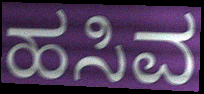
ಹಸಿವ